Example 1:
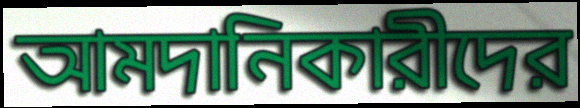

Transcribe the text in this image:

আমদানিকারীদের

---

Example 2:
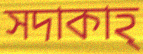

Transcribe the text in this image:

সদাকাহ্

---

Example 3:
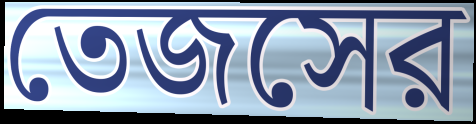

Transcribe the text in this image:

তেজসের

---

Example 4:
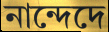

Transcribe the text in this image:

নান্দেদে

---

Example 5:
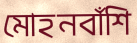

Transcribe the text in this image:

মোহনবাঁশি